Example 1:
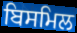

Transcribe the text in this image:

ਬਿਸਮਿਲ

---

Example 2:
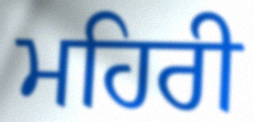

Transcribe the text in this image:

ਮਹਿਰੀ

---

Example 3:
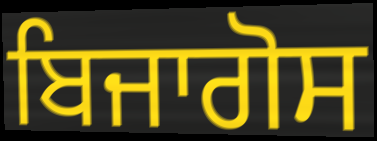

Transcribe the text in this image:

ਬਿਜਾਗੋਸ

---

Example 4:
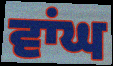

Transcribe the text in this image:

ਵਾਂਘ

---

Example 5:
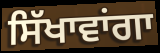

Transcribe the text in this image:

ਸਿੱਖਾਵਾਂਗਾ